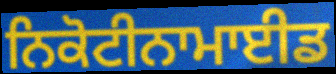
ਨਿਕੋਟੀਨਾਮਾਈਡ